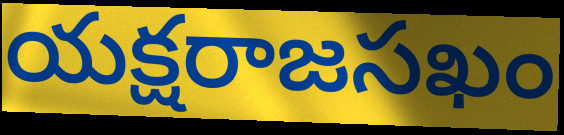
యక్షరాజసఖం